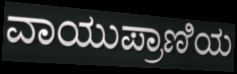
ವಾಯುಪ್ರಾಣಿಯ